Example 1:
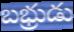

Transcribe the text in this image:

బభ్రుడు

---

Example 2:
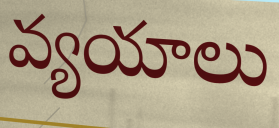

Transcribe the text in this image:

వ్యయాలు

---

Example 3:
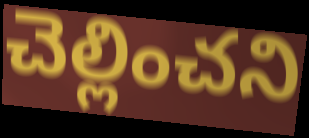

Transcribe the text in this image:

చెల్లించని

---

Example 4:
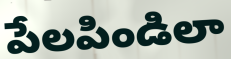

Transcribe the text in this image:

పేలపిండిలా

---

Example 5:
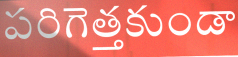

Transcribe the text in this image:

పరిగెత్తకుండా